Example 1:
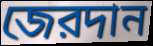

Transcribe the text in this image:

জেরদান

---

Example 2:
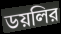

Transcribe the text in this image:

ডয়লির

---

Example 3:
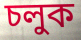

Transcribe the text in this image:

চলুক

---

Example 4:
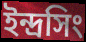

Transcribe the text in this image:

ইন্দ্রসিং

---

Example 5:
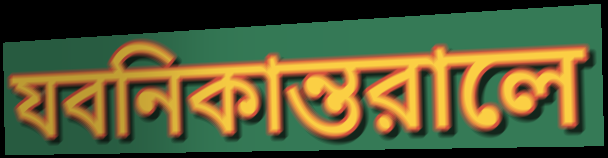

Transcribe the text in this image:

যবনিকান্তরালে